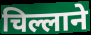
चिल्लाने